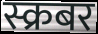
स्‍क्रबर